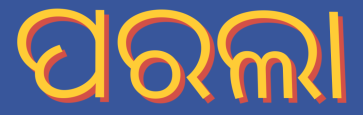
ପରଲା